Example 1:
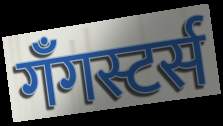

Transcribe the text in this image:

गँगस्टर्स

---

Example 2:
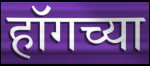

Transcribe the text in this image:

हॉगच्या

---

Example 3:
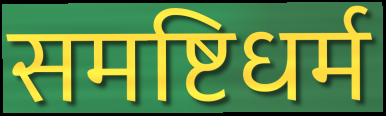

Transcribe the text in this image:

समष्टिधर्म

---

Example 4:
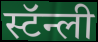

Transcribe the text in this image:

स्टॅन्ली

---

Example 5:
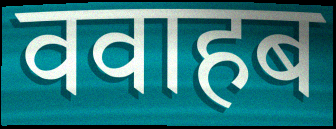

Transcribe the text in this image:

ववाहब